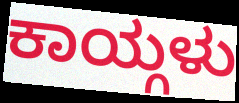
ಕಾಯ್ಗಳು